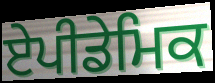
ਏਪੀਡੇਮਿਕ